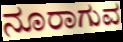
ನೂರಾಗುವ